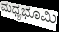
ಮಧ್ಯಭೂಮಿ